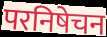
परनिषेचन